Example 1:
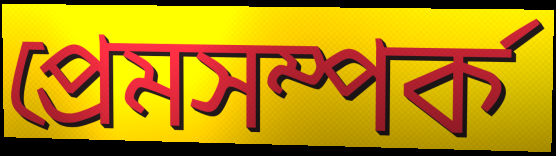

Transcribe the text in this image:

প্রেমসম্পর্ক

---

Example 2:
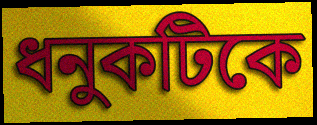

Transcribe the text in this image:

ধনুকটিকে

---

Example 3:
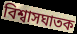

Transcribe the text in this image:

বিশ্বাসঘাতক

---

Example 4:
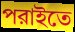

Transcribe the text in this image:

পরাইতে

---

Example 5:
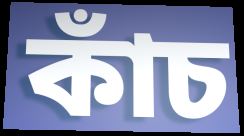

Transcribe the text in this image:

কাঁচ